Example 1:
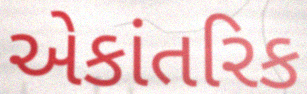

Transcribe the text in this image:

એકાંતરિક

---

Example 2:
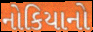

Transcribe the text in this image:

નોકિયાનો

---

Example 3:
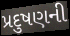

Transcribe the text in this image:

પ્રદુષણની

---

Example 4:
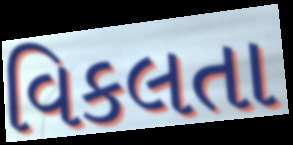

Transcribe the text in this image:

વિકલતા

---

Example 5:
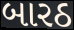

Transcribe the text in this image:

બારઠ